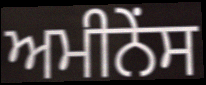
ਅਮੀਨੇਂਸ